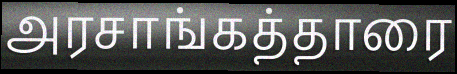
அரசாங்கத்தாரை